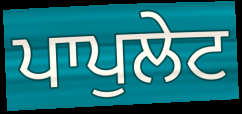
ਪਾਪੁਲੇਟ